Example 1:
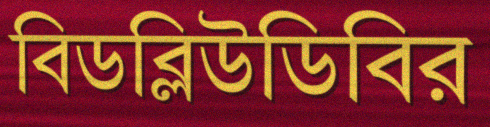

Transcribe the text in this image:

বিডব্লিউডিবির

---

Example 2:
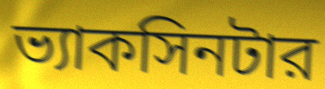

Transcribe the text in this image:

ভ্যাকসিনটার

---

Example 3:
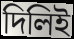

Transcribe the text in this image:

দিলিই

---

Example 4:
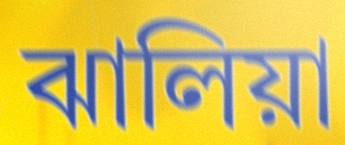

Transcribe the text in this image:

ঝালিয়া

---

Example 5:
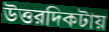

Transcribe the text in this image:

উত্তরদিকটায়